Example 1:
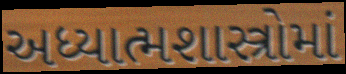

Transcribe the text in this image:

અધ્યાત્મશાસ્ત્રોમાં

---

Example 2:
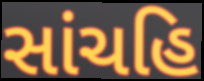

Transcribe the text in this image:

સાંચહિ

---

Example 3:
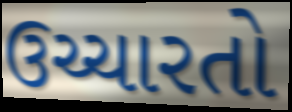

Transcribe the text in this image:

ઉચ્ચારતો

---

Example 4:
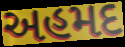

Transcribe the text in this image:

અહમદ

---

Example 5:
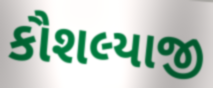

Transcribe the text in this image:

કૌશલ્યાજી